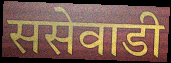
ससेवाडी